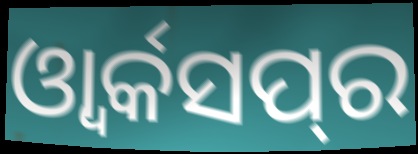
ଓ୍ୱାର୍କସପ୍‌ର